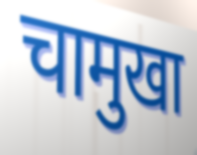
चामुखा